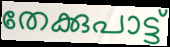
തേക്കുപാട്ട്